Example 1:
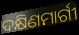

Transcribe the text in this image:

ଦକ୍ଷିଣମାର୍ଗୀ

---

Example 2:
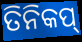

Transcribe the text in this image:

ତିନିକପ୍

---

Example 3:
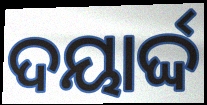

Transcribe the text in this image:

ଦୟାର୍ଦ୍ଦ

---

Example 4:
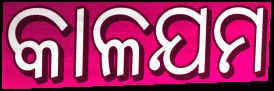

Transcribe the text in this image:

କାଳଯମ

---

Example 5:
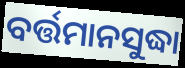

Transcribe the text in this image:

ବର୍ତ୍ତମାନସୁଦ୍ଧା